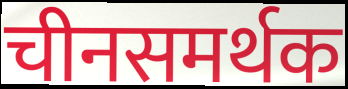
चीनसमर्थक